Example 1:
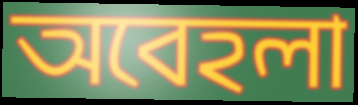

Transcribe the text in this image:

অবেহলা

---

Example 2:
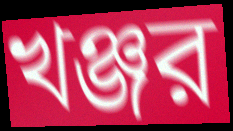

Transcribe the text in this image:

খঞ্জর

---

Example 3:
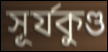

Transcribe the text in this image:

সূর্যকুণ্ড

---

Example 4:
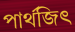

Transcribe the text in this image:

পার্থজিৎ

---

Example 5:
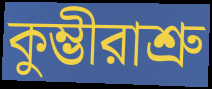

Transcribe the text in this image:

কুম্ভীরাশ্রু